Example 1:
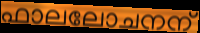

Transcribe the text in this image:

ഫാലലോചനന്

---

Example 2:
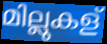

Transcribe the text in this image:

മില്ലുകള്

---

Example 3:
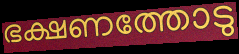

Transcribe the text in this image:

ഭക്ഷണത്തോടു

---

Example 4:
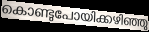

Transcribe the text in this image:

കൊണ്ടുപോയിക്കഴിഞ്ഞു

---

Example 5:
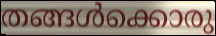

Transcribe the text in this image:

തങ്ങൾക്കൊരു